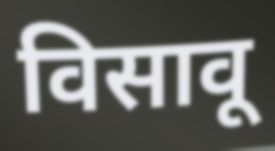
विसावू